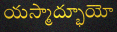
యస్మాద్భూయో